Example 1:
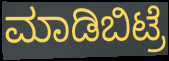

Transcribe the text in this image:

ಮಾಡಿಬಿಟ್ರೆ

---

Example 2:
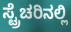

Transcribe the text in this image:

ಸ್ಟ್ರೆಚರಿನಲ್ಲಿ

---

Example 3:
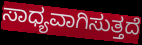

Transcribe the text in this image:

ಸಾಧ್ಯವಾಗಿಸುತ್ತದೆ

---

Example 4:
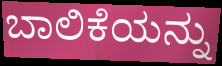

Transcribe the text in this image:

ಬಾಲಿಕೆಯನ್ನು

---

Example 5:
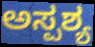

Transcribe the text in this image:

ಅಸ್ಪಶ್ಯ